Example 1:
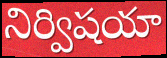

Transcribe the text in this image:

నిర్విషయా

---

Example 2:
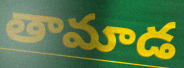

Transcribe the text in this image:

తామాడ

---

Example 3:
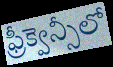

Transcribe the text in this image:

ఫ్రీక్వెన్సీలో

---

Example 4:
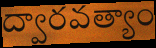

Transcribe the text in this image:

ద్వారవత్యాం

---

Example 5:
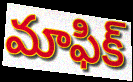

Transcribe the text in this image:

మాఫిక్